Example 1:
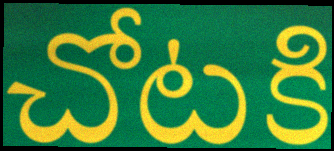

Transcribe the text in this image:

చోటకి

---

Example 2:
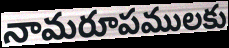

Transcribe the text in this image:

నామరూపములకు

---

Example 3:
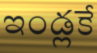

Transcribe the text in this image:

ఇండ్లకే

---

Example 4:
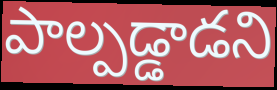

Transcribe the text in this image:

పాల్పడ్డాడని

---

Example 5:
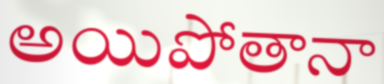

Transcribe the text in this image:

అయిపోతానా